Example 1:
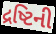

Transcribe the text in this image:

દ્રષ્ટિની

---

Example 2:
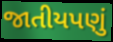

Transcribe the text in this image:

જાતીયપણું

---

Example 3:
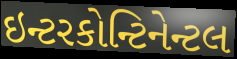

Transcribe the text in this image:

ઇન્ટરકોન્ટિનેન્ટલ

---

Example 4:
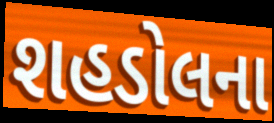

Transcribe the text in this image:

શહડોલના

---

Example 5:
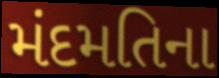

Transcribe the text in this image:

મંદમતિના